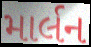
માર્લન